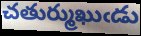
చతుర్ముఖుఁడు